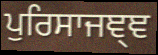
ਪੁਰਿਸਾਜਞ੍ਞ